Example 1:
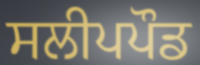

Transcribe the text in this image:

ਸਲੀਪਪੌਡ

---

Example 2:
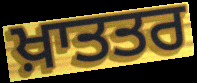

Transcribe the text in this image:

ਖ਼ਾਤਤਰ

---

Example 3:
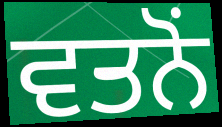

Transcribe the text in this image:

ਵਤਨੋਂ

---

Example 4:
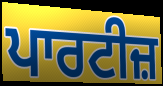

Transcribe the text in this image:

ਪਾਰਟੀਜ਼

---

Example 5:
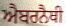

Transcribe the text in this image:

ਐਬਰਨੈਥੀ